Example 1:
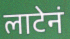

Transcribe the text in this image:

लाटेनं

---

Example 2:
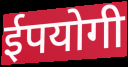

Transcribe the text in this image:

ईपयोगी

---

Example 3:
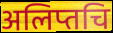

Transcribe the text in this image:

अलिप्तचि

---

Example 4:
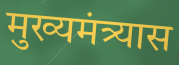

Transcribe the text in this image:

मुख्यमंत्र्यास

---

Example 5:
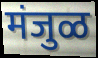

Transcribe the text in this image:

मंजुळ